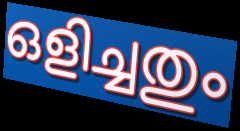
ഒളിച്ചതും